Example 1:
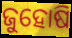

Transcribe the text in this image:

ଜୁହୋଷି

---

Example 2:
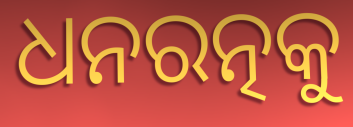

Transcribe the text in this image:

ଧନରତ୍ନକୁ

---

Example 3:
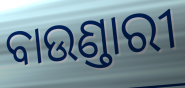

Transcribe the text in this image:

ବାଉଣ୍ଡାରୀ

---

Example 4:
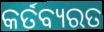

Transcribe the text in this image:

କର୍ତବ୍ୟରତ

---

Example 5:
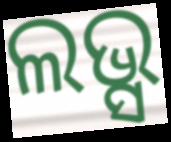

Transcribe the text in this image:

ଲଭ୍ସ